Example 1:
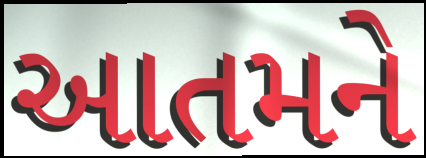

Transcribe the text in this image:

આતમને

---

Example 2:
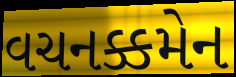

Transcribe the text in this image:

વચનક્કમેન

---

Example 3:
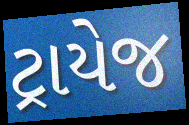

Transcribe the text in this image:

ટ્રાયેજ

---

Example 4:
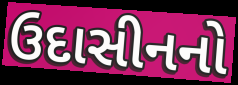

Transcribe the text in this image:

ઉદાસીનનો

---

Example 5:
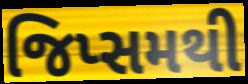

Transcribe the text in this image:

જિપ્સમથી